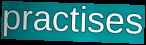
practises